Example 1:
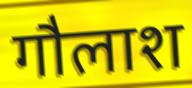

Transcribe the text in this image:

गौलाश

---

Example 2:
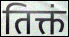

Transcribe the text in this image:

तिक्तं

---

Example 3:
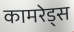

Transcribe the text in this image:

कामरेड्स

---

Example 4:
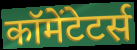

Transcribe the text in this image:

कॉमेंटेटर्स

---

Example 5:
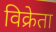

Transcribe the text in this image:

विक्रेता